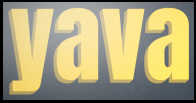
yava